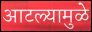
आटल्यामुळे